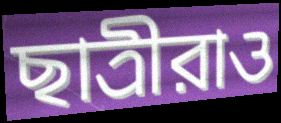
ছাত্রীরাও